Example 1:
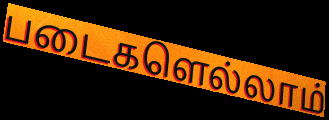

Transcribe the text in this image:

படைகளெல்லாம்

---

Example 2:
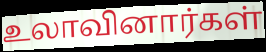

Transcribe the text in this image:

உலாவினார்கள்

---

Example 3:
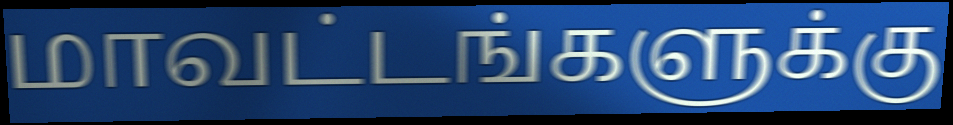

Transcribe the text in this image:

மாவட்டங்களுக்கு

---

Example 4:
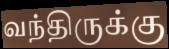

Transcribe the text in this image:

வந்திருக்கு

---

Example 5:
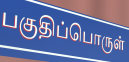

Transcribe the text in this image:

பகுதிப்பொருள்